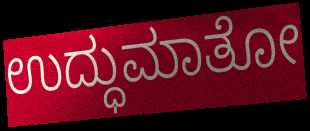
ಉದ್ಧುಮಾತೋ